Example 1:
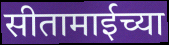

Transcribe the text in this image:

सीतामाईच्या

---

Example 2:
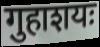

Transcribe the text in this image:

गुहाशयः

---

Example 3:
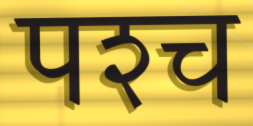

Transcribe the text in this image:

पश्च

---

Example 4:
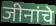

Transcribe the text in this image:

जीनांचे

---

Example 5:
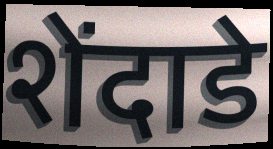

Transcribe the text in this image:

शेंदाडे